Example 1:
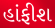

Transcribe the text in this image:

હાંફીશ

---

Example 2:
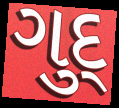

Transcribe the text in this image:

ગુદ્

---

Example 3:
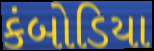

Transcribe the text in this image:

કંબોડિયા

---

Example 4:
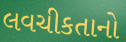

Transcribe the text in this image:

લવચીકતાનો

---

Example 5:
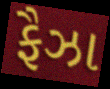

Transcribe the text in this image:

ફૈઝા